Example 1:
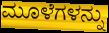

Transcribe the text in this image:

ಮೂಳೆಗಳನ್ನು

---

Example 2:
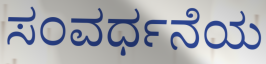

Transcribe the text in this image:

ಸಂವರ್ಧನೆಯ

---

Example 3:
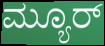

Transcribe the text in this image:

ಮ್ಯೂರ್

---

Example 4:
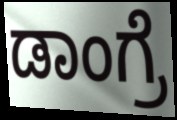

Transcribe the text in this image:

ಡಾಂಗ್ರೆ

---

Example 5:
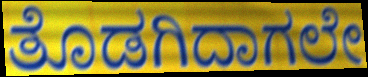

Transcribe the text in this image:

ತೊಡಗಿದಾಗಲೇ